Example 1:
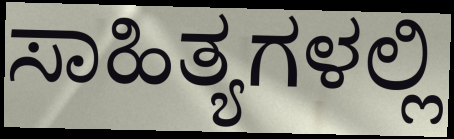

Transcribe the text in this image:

ಸಾಹಿತ್ಯಗಳಲ್ಲಿ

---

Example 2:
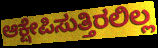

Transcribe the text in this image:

ಆಕ್ಷೇಪಿಸುತ್ತಿರಲಿಲ್ಲ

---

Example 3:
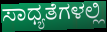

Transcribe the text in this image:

ಸಾಧ್ಯತೆಗಳಲ್ಲಿ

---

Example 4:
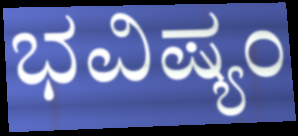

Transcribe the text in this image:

ಭವಿಷ್ಯಂ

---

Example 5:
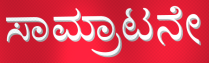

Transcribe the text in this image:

ಸಾಮ್ರಾಟನೇ